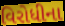
વિરોધીના